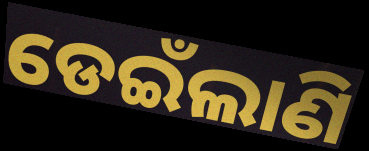
ଡେଇଁଲାଣି